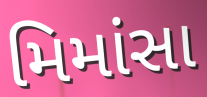
મિમાંસા